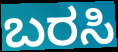
ಬರಸಿ